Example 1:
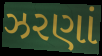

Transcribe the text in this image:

ઝરણાં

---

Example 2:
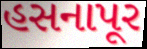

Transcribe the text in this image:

હસનાપૂર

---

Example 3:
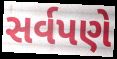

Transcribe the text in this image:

સર્વપણે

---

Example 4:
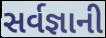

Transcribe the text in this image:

સર્વજ્ઞાની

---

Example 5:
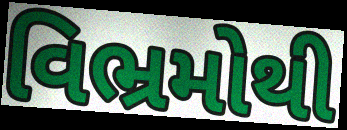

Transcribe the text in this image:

વિભ્રમોથી